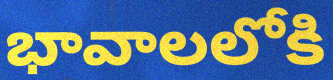
భావాలలోకి